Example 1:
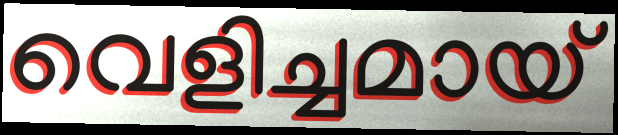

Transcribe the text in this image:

വെളിച്ചമായ്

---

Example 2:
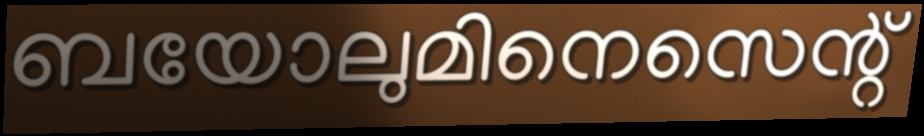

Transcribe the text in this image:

ബയോലുമിനെസെന്റ്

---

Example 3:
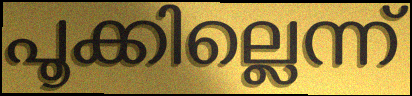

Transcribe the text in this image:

പൂക്കില്ലെന്ന്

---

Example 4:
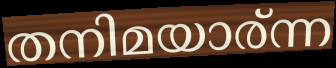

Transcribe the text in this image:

തനിമയാര്ന്ന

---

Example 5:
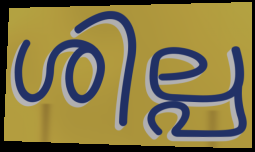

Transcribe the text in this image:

ശില്പ